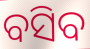
ବସିବ